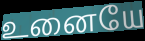
உனையே